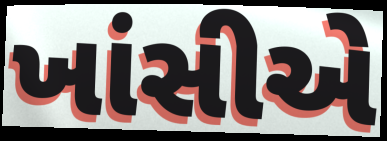
ખાંસીએ